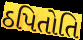
ઠપિતોતિ